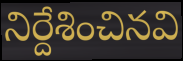
నిర్దేశించినవి